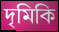
দৃমিকি